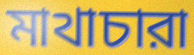
মাথাচারা